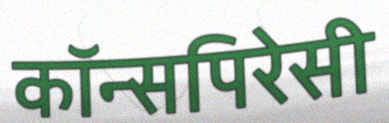
कॉन्सपिरेसी